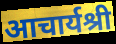
आचार्यश्री